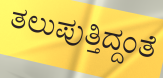
ತಲುಪುತ್ತಿದ್ದಂತೆ